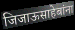
जिजाऊसाहेबांना